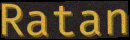
Ratan